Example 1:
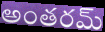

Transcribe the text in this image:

అంతరమ్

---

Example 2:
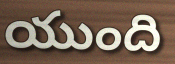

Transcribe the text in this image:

యుంది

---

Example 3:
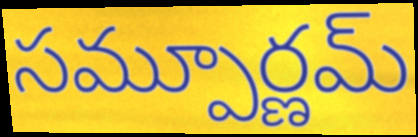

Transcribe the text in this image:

సమ్పూర్ణమ్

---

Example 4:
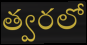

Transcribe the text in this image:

త్వరలో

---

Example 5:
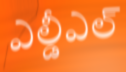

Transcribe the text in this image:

ఎల్డీఎల్